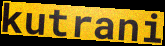
kutrani